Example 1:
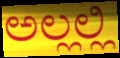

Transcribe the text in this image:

ಅಲ್ಲಲ್ಲಿ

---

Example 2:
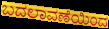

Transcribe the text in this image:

ಬದಲಾವಣೆಯಿಂದ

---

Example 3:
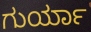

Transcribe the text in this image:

ಗುರ್ಯಾ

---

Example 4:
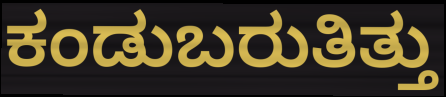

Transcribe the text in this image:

ಕಂಡುಬರುತಿತ್ತು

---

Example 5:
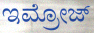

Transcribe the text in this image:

ಇಮ್ರೋಜ್